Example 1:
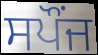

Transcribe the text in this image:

ਸਪੌਂਜ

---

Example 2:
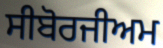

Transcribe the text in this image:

ਸੀਬੋਰਜੀਅਮ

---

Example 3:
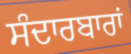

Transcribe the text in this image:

ਸੰਦਾਰਬਾਰਾਂ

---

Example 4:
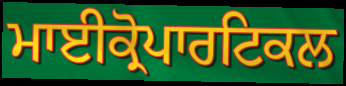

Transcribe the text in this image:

ਮਾਈਕ੍ਰੋਪਾਰਟਿਕਲ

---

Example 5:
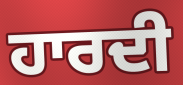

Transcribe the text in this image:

ਹਾਰਦੀ